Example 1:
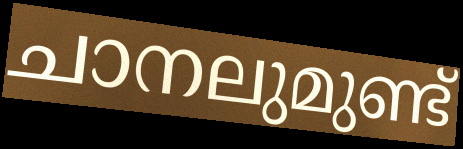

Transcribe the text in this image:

ചാനലുമുണ്ട്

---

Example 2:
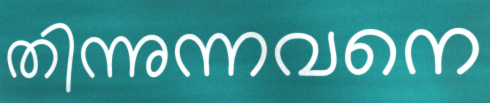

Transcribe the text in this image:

തിന്നുന്നവനെ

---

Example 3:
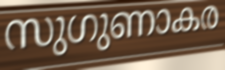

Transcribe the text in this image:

സുഗുണാകര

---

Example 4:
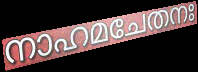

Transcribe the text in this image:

നാഹമചേതനഃ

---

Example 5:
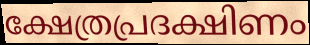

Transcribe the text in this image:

ക്ഷേത്രപ്രദക്ഷിണം